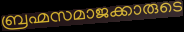
ബ്രഹ്മസമാജക്കാരുടെ